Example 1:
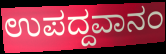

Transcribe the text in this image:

ಉಪದ್ದವಾನಂ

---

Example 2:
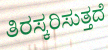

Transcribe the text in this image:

ತಿರಸ್ಕರಿಸುತ್ತದೆ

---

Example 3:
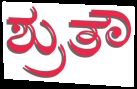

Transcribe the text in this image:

ಶ್ರುತೌ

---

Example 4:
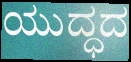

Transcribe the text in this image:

ಯುದ್ಧದ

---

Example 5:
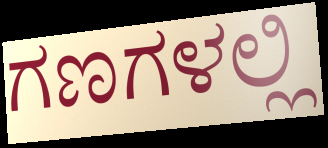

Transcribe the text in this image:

ಗಣಗಳಲ್ಲಿ